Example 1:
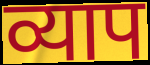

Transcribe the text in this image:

व्याप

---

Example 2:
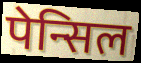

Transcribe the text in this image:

पेन्सिल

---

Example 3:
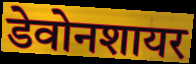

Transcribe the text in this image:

डेवोनशायर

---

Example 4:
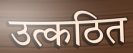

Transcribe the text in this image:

उत्कठित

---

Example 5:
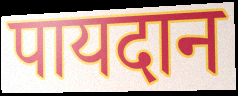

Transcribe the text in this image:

पायदान